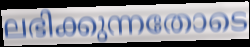
ലഭിക്കുന്നതോടെ